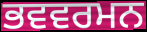
ਭਵਵਰਮਨ